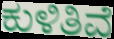
ಕುಳಿತಿವೆ